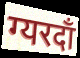
ग्यरदाँ